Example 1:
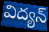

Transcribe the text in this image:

విద్యన్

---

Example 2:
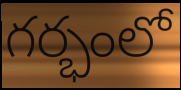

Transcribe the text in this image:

గర్భంలో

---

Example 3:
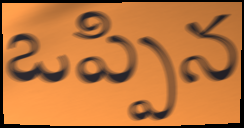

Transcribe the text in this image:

ఒప్పిన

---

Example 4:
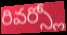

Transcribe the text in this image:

రివర్స్లో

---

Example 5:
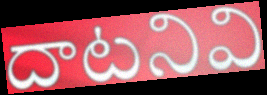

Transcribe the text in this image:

దాటనివి